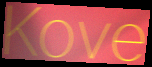
Kove